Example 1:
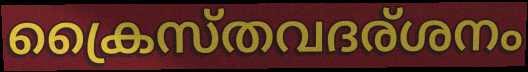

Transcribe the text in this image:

ക്രൈസ്തവദര്ശനം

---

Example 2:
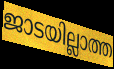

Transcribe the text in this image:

ജാടയില്ലാത്ത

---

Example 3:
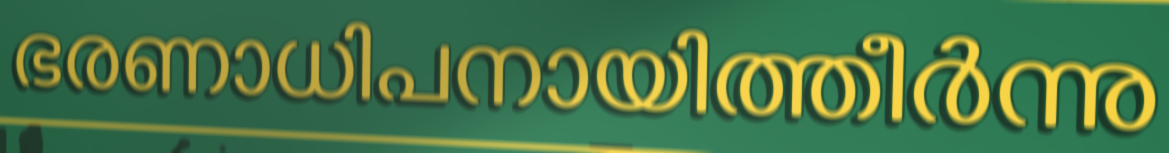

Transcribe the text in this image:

ഭരണാധിപനായിത്തീർന്നു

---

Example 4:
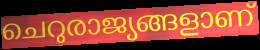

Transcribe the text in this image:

ചെറുരാജ്യങ്ങളാണ്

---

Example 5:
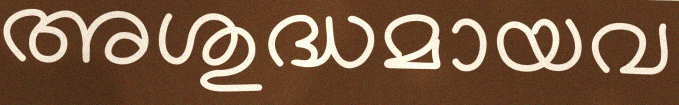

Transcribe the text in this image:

അശുദ്ധമായവ